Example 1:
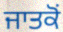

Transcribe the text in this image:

ਜਾਤਕੋਂ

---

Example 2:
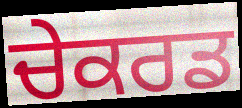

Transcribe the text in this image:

ਚੇਕਰਡ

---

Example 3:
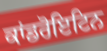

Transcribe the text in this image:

ਕਾਂਡਰੋਇਟਿਨ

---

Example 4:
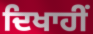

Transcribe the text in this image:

ਦਿਖਾਹੀਂ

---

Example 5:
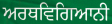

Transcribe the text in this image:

ਅਰਥਵਿਗਿਆਨੀ